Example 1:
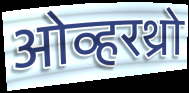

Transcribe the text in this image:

ओव्हरथ्रो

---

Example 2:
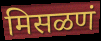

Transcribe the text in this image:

मिसळणं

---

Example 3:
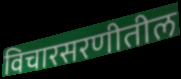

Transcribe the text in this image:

विचारसरणीतील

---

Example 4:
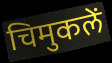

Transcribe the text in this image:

चिमुकलें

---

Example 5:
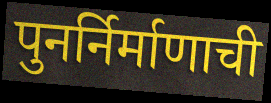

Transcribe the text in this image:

पुनर्निर्माणाची